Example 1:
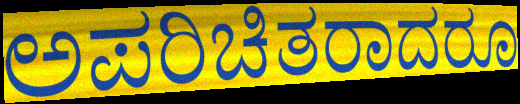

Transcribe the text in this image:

ಅಪರಿಚಿತರಾದರೂ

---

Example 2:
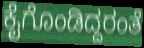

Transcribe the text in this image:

ಕೈಗೊಂಡಿದ್ದರಂತೆ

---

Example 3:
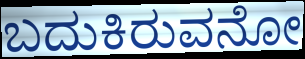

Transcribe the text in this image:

ಬದುಕಿರುವನೋ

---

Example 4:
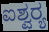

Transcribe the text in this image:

ಐಶ್ವರ‍್ಯ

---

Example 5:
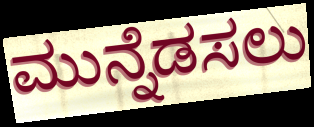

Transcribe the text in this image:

ಮುನ್ನೆಡಸಲು